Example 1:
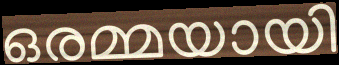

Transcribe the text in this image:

ഒരമ്മയായി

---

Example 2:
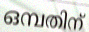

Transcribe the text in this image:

ഒമ്പതിന്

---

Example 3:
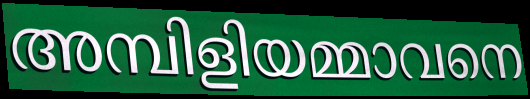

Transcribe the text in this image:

അമ്പിളിയമ്മാവനെ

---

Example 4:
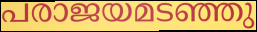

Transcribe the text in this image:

പരാജയമടഞ്ഞു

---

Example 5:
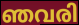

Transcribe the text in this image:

ഞവരി